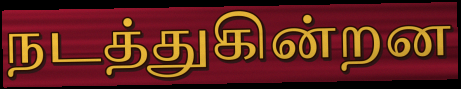
நடத்துகின்றன